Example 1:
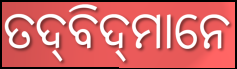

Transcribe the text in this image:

ତଦ୍‌ବିଦ୍‌ମାନେ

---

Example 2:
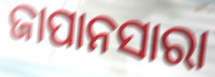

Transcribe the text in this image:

ଜାପାନସାରା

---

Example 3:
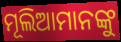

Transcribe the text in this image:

ମୂଲିଆମାନଙ୍କୁ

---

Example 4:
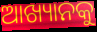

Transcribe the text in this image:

ଆଖ୍ୟାନକୁ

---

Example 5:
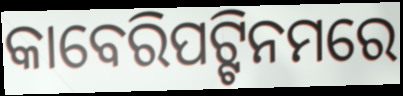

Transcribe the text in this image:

କାବେରିପଟ୍ଟିନମରେ